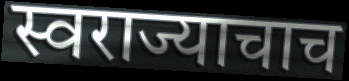
स्वराज्याचाच